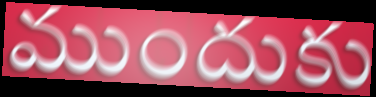
ముందుకు